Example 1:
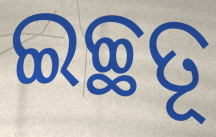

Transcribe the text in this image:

ଇଚ୍ଛତୂ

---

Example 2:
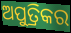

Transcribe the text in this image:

ଅପୁତ୍ରିକର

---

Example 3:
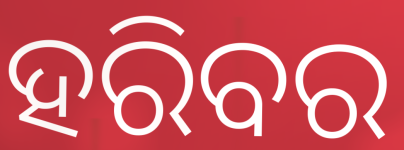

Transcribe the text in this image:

ହରିବର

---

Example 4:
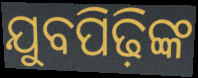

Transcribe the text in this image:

ଯୁବପିଢ଼ିଙ୍କ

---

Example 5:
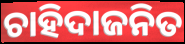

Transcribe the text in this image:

ଚାହିଦାଜନିତ